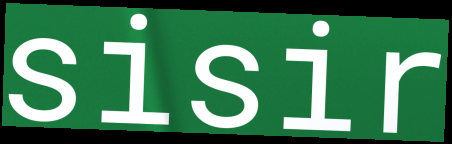
sisir